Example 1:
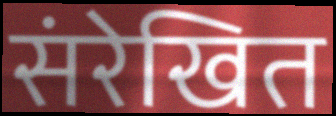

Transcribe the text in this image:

संरेखित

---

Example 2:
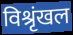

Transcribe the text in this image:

विश्रृंखल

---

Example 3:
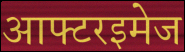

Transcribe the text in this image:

आफ्टरइमेज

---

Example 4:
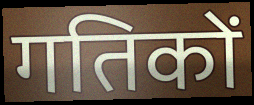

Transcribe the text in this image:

गतिकों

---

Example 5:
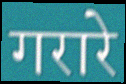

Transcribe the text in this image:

गरारे